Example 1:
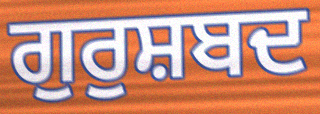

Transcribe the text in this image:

ਗੁਰੁਸ਼ਬਦ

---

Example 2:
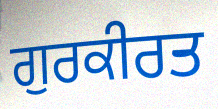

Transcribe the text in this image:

ਗੁਰਕੀਰਤ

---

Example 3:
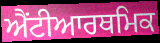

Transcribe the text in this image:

ਐਂਟੀਆਰਥਮਿਕ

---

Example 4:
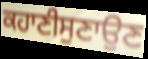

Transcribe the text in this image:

ਕਹਾਣੀਸੁਣਾਉਣ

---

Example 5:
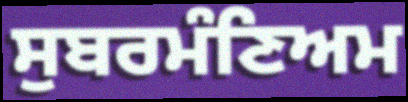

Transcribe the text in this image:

ਸੁਬਰਮੰਣਿਅਮ